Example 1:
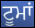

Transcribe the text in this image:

ਟੂਮਾਂ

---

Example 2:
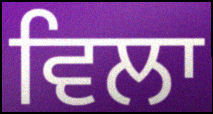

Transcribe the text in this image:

ਵਿਲਾ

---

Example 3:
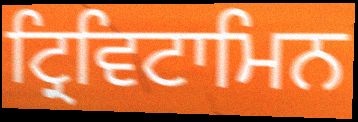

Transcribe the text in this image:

ਟ੍ਰਿਵਿਟਾਮਿਨ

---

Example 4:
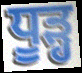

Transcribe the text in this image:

ਧੂੜ੍ਹ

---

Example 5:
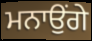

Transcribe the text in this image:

ਮਨਾਉਂਗੇ